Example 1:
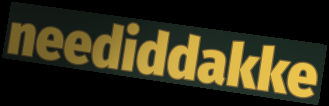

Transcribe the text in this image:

neediddakke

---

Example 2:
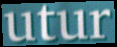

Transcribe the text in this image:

utur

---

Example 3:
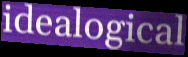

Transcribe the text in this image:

idealogical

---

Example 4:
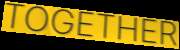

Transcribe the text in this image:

TOGETHER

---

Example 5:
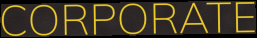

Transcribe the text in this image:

CORPORATE